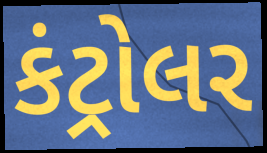
કંટ્રોલર